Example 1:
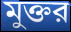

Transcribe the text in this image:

মুক্তর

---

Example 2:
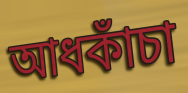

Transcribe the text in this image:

আধকাঁচা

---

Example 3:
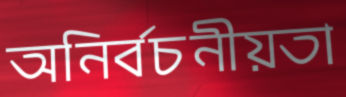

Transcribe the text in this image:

অনির্বচনীয়তা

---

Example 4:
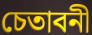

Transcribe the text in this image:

চেতাবনী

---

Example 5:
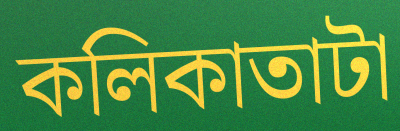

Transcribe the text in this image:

কলিকাতাটা